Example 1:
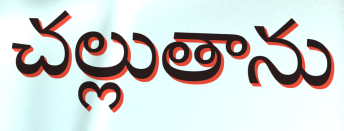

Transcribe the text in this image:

చల్లుతాను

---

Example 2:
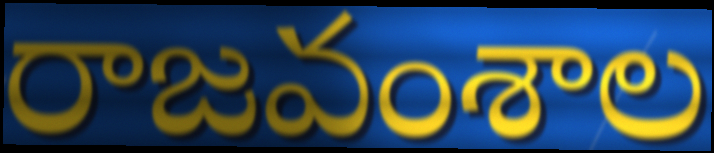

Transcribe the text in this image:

రాజవంశాల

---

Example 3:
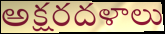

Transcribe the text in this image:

అక్షరదళాలు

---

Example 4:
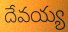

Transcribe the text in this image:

దేవయ్య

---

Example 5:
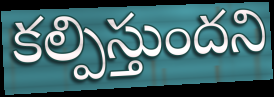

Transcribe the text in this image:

కల్పిస్తుందని